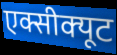
एक्सीक्यूट